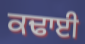
ਕਢਾਈ